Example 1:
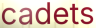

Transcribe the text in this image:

cadets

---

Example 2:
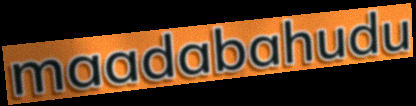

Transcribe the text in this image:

maadabahudu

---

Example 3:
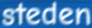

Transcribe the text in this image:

steden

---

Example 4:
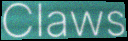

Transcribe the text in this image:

Claws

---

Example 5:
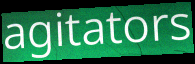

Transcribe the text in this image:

agitators